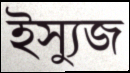
ইস্যুজ